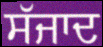
ਸੱਜਾਦ